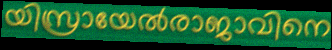
യിസ്രായേൽരാജാവിനെ